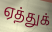
ஏத்துக்